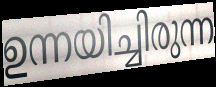
ഉന്നയിച്ചിരുന്ന